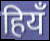
हियँ